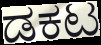
ಡಕಟ